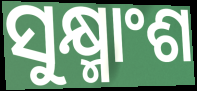
ସୁକ୍ଷ୍ମାଂଶ